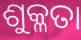
ଶୁକ୍ଳତା